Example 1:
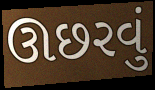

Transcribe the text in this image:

ઊછરવું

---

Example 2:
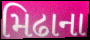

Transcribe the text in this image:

મિઢાના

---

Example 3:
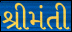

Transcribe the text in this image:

શ્રીમંતી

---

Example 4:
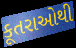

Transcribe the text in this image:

કૂતરાઓથી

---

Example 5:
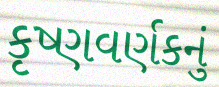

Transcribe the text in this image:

કૃષ્ણવર્ણકનું